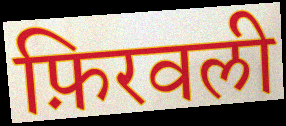
फ़िरवली